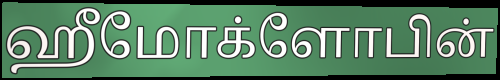
ஹீமோக்ளோபின்